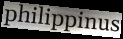
philippinus